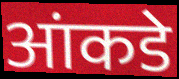
आंकडे